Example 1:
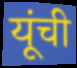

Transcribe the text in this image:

यूंची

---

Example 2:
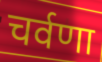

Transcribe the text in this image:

चर्वणा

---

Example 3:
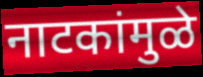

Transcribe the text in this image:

नाटकांमुळे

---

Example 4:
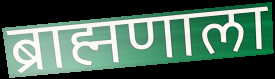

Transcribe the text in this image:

ब्राह्मणाला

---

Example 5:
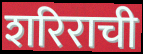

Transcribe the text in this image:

शरिराची